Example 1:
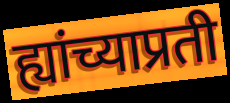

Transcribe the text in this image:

ह्यांच्याप्रती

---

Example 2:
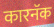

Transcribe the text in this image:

कारनॅक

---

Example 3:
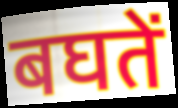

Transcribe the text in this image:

बघतें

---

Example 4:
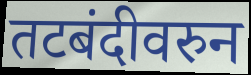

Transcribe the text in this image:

तटबंदीवरुन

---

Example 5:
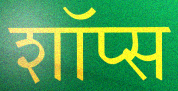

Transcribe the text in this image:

शॉप्स